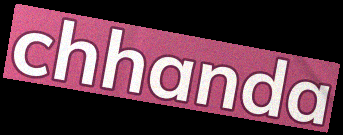
chhanda